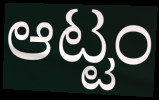
ಆಟ್ಟಂ